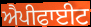
ਐਪੀਫਾਈਟ